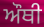
ਔਥੀ